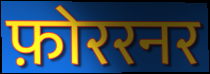
फ़ोररनर